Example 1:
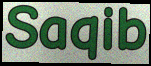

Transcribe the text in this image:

Saqib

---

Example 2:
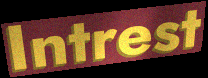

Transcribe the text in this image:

Intrest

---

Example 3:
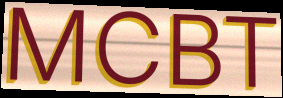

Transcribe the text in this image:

MCBT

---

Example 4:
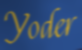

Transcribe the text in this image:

Yoder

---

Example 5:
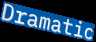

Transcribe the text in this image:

Dramatic